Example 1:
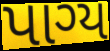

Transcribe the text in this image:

પાગ્ય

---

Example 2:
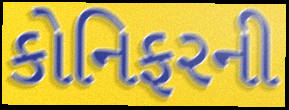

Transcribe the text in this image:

કોનિફરની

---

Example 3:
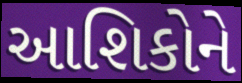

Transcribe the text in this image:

આશિકોને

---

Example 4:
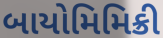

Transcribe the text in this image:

બાયોમિમિક્રી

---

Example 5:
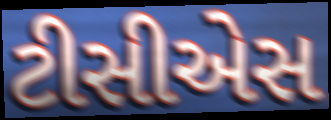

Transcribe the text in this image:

ટીસીએસ